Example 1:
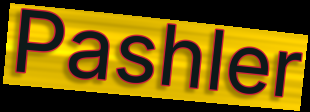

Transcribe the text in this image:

Pashler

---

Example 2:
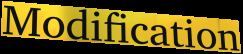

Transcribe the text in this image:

Modification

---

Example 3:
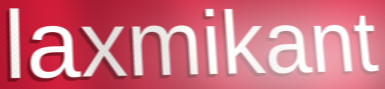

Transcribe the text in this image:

laxmikant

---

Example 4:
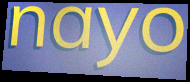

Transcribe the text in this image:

nayo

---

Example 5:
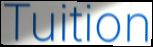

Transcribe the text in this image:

Tuition